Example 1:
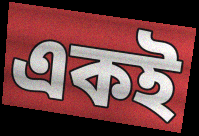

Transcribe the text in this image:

একই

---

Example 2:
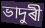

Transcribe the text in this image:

ভাদুৰী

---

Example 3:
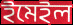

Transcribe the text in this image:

ইমেইল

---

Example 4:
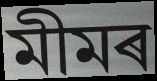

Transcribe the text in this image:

মীমৰ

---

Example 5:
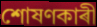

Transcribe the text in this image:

শোষণকাৰী